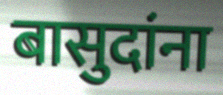
बासुदांना